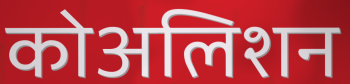
कोअलिशन